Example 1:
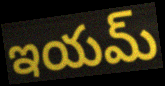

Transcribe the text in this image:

ఇయమ్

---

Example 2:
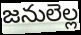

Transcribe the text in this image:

జనులెల్ల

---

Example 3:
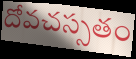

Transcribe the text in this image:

దోవచస్సతం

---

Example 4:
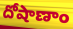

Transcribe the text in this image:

దోషాణాం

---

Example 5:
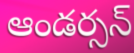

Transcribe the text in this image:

ఆండర్సన్